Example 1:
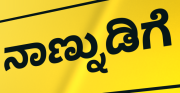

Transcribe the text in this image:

ನಾಣ್ನುಡಿಗೆ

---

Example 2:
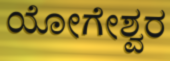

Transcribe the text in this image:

ಯೋಗೇಶ್ವರ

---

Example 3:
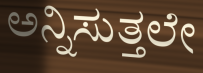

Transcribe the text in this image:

ಅನ್ನಿಸುತ್ತಲೇ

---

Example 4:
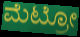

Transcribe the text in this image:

ಮೆಟ್ರೋ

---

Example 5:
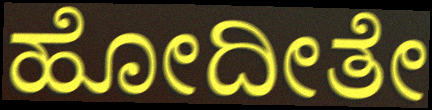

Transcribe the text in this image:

ಹೋದೀತೇ